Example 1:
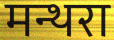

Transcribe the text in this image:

मन्थरा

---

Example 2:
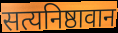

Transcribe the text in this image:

सत्यनिष्ठावान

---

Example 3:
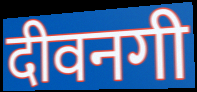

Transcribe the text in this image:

दीवनगी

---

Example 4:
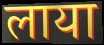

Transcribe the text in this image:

लाया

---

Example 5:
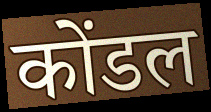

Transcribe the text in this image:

कोंडल